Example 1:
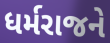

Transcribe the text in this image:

ધર્મરાજને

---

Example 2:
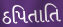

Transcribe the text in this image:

ઠપિતાતિ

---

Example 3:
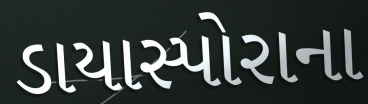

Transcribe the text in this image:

ડાયાસ્પોરાના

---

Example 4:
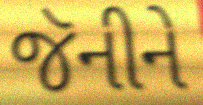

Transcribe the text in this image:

જૅનીને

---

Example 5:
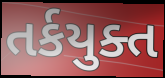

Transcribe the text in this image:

તર્કયુક્ત